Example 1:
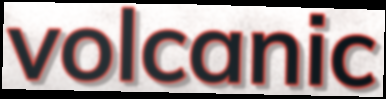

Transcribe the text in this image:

volcanic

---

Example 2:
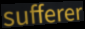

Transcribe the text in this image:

sufferer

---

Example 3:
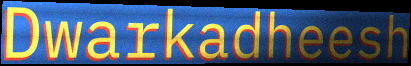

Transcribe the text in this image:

Dwarkadheesh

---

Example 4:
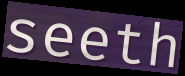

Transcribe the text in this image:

seeth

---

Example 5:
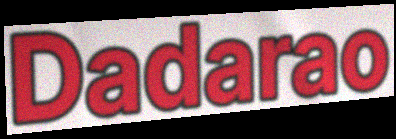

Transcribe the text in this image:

Dadarao